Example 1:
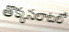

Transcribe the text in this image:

తొక్కసలాటలో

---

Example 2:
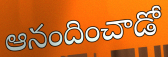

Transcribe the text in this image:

ఆనందించాడో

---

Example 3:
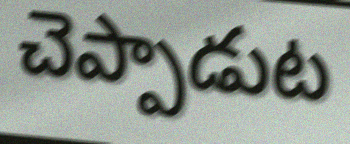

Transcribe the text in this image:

చెప్పాడుట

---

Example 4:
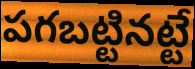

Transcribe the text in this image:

పగబట్టినట్టే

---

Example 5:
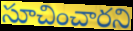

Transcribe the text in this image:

సూచించారని